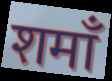
शमाँ